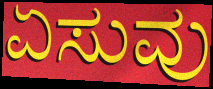
ಏಸುವು